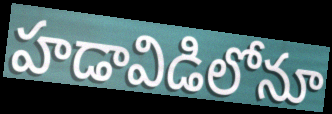
హడావిడిలోనూ